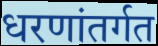
धरणांतर्गत